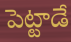
పెట్టాడే